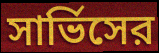
সার্ভিসের